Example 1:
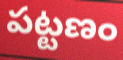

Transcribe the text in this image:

పట్టణం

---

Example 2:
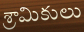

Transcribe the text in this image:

శ్రామికులు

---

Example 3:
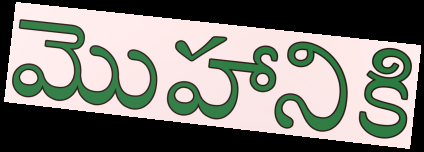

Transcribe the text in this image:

మొహానికి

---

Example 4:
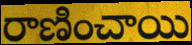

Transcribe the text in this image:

రాణించాయి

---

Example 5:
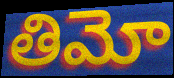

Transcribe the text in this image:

తిమో